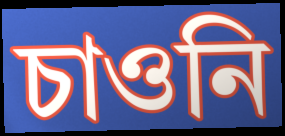
চাওনি